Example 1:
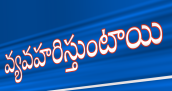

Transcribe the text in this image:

వ్యవహరిస్తుంటాయి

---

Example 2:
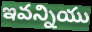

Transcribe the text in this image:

ఇవన్నియు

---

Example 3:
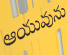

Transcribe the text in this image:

ఆయువును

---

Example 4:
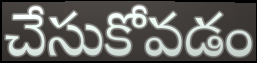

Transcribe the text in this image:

చేసుకోవడం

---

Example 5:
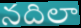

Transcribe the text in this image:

నదిలా